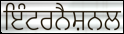
ਇੰਟਰਨੈਸ਼ਨਲ